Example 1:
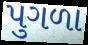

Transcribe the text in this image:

પુગળા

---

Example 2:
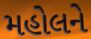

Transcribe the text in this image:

મહોલને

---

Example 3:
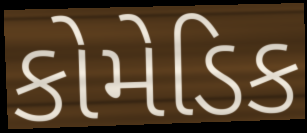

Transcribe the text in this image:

કોમેડિક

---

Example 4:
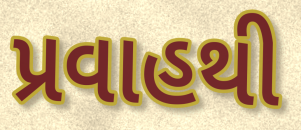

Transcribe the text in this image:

પ્રવાહથી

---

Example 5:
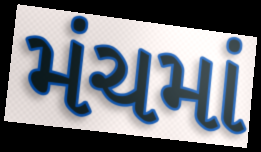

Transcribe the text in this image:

મંચમાં